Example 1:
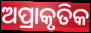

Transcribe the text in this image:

ଅପ୍ରାକୃତିକ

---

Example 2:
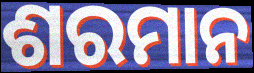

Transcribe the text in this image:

ଶରମାନ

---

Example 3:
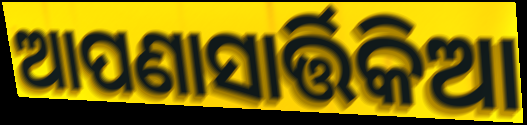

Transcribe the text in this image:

ଆପଣାସାର୍ତ୍ତିକିଆ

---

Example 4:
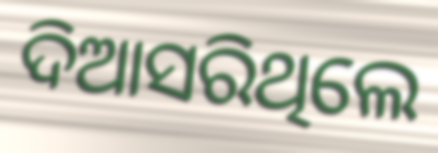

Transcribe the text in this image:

ଦିଆସରିଥିଲେ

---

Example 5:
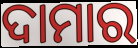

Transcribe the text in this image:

ଦାମାର